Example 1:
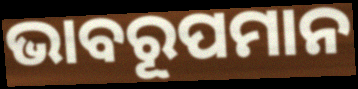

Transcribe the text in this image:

ଭାବରୂପମାନ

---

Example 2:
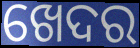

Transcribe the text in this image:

ଖେଦର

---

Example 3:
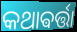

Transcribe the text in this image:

କଥାଵର୍ତ୍ତା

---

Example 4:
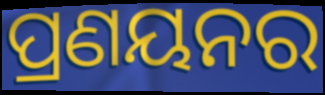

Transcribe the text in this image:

ପ୍ରଣୟନର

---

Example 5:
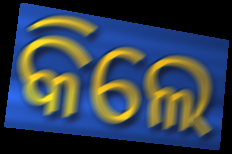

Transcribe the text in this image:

କିଲେ